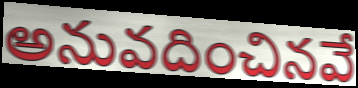
అనువదించినవే